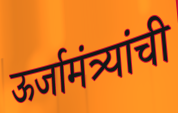
ऊर्जामंत्र्यांची